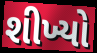
શીખ્યો